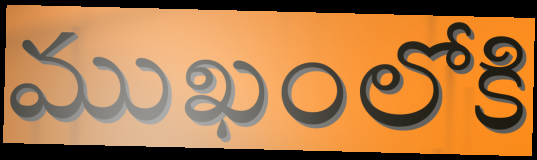
ముఖంలోకి